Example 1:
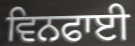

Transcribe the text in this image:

ਵਿਨਫਾਈ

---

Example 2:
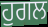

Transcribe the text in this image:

ਹੁਗਲ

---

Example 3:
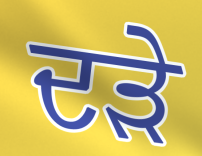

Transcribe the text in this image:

ਦੜੇ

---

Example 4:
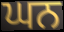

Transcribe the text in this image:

ਘਨ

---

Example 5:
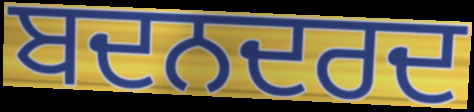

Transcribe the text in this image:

ਬਦਨਦਰਦ